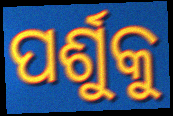
ପର୍ଶୁକୁ